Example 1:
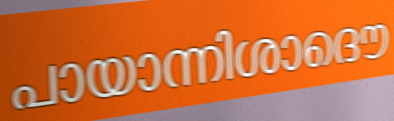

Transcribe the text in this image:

പായാന്നിശാദൌ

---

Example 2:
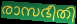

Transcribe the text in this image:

രാസഭീതി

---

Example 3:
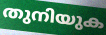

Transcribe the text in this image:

തുനിയുക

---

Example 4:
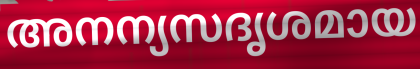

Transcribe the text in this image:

അനന്യസദൃശമായ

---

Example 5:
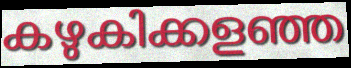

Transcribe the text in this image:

കഴുകിക്കളഞ്ഞ